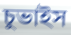
চুভাইস